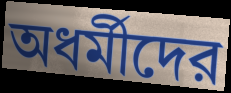
অধর্মীদের